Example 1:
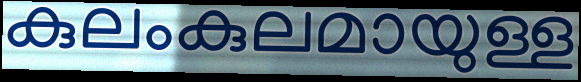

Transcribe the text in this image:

കുലംകുലമായുള്ള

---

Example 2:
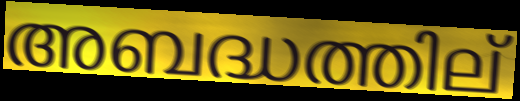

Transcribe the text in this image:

അബദ്ധത്തില്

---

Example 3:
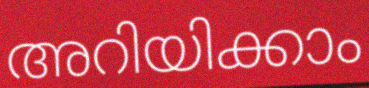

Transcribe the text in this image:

അറിയിക്കാം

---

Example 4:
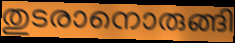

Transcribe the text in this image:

തുടരാനൊരുങ്ങി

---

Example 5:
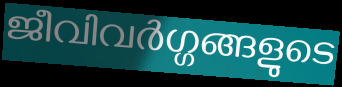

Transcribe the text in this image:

ജീവിവർഗ്ഗങ്ങളുടെ